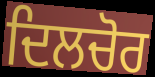
ਦਿਲਚੋਰ